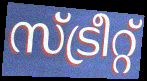
സ്ട്രീറ്റ്